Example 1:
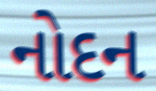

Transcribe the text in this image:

નોદન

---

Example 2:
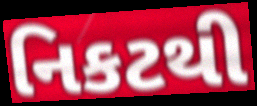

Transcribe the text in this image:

નિકટથી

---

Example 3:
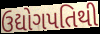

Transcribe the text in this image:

ઉદ્યોગપતિથી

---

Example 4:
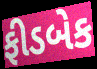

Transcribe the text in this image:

ફીડબેક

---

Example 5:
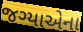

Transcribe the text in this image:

જગ્યાએના